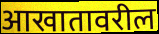
आखातावरील